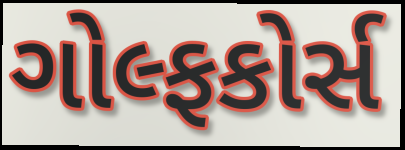
ગોલ્ફકોર્સ